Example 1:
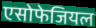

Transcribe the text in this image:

एसोफेजियल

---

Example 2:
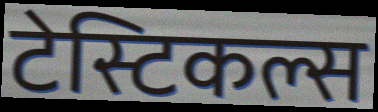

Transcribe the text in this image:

टेस्टिकल्स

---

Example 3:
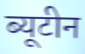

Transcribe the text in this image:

ब्यूटीन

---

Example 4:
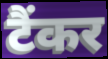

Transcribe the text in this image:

टैंकर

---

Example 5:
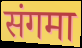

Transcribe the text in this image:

संगमा